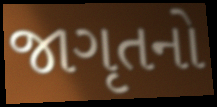
જાગૃતનો